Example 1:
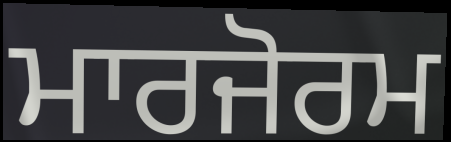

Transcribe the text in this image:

ਮਾਰਜੋਰਮ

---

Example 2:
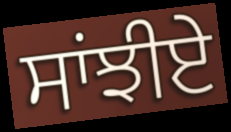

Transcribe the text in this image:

ਸਾਂਝੀਏ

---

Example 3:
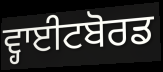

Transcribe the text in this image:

ਵ੍ਹਾਈਟਬੋਰਡ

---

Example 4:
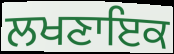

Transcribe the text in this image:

ਲਖਣਾਇਕ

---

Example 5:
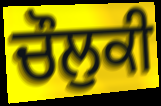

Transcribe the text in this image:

ਚੌਲੁਕੀ